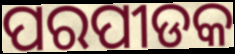
ପରପୀଡକ